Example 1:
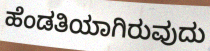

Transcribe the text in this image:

ಹೆಂಡತಿಯಾಗಿರುವುದು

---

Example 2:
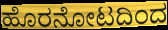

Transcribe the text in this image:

ಹೊರನೋಟದಿಂದ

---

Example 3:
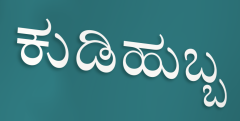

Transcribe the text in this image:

ಕುಡಿಹುಬ್ಬ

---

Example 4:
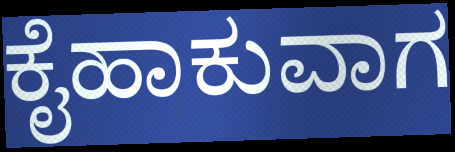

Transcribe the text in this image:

ಕೈಹಾಕುವಾಗ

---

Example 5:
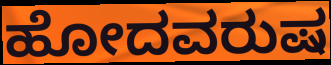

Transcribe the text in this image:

ಹೋದವರುಷ